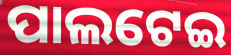
ପାଲଟେଇ